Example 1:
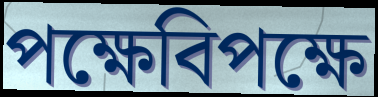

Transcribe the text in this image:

পক্ষেবিপক্ষে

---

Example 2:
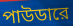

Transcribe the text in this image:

পাউডারে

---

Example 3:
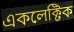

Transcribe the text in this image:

একলেক্টিক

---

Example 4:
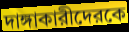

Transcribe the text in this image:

দাঙ্গাকারীদেরকে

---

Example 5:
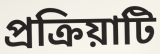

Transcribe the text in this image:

প্রক্রিয়াটি